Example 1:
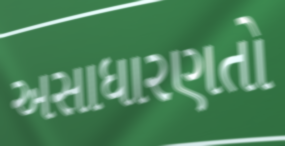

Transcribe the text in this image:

અસાધારણતો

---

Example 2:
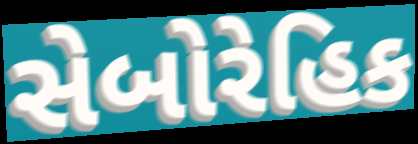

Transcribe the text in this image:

સેબોરેહિક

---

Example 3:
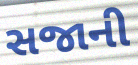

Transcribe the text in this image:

સજાની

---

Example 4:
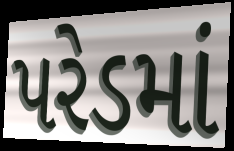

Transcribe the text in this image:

પરેડમાં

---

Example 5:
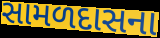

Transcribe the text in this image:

સામળદાસના